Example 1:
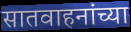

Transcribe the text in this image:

सातवाहनांच्या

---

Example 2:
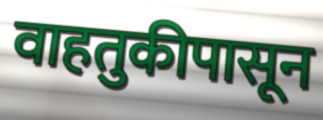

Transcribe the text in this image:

वाहतुकीपासून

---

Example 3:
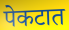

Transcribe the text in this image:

पेकटात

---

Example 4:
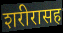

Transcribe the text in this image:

शरीरासह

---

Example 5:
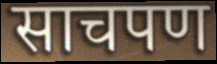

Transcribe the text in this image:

साचपण